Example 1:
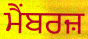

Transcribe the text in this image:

ਮੈਂਬਰਜ਼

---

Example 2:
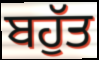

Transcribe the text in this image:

ਬਹੁੱਤ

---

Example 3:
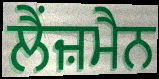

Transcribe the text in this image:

ਲੈਂਜ਼ਮੈਨ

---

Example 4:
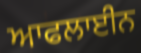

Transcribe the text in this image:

ਆਫਲਾਈਨ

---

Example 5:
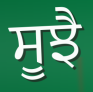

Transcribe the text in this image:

ਸੂਝੈ